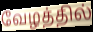
வேழத்தில்